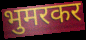
भुमरकर